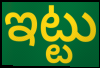
ఇట్టు